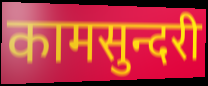
कामसुन्दरी